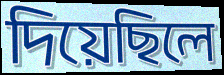
দিয়েছিলে